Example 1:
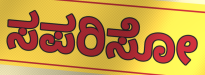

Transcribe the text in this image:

ಸಪರಿಸೋ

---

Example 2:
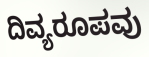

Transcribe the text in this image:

ದಿವ್ಯರೂಪವು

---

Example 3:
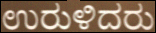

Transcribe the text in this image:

ಉರುಳಿದರು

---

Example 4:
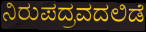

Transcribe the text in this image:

ನಿರುಪದ್ರವದಲಿಡೆ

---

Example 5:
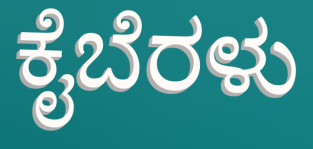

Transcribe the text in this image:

ಕೈಬೆರಳು